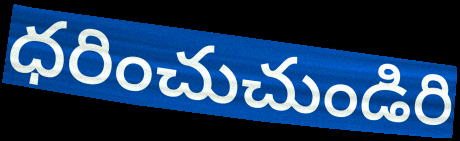
ధరించుచుండిరి